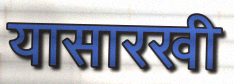
यासारखी